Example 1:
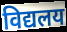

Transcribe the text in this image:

विद्यलय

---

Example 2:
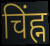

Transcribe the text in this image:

चिंह्न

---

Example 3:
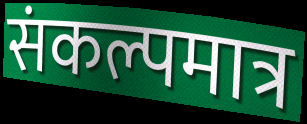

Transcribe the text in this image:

संकल्पमात्र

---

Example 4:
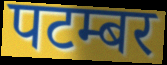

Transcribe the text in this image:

पटम्बर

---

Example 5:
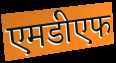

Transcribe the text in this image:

एमडीएफ